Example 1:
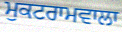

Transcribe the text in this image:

ਮੁਕਟਰਾਮਵਾਲਾ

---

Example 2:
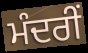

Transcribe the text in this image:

ਮੰਦਰੀਂ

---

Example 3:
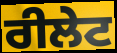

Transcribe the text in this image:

ਰੀਲੇਟ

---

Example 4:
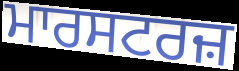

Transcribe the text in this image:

ਮਾਰਸਟਰਜ਼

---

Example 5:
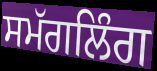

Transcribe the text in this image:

ਸਮੱਗਲਿੰਗ